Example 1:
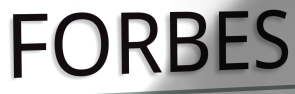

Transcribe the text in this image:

FORBES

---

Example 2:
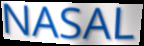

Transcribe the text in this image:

NASAL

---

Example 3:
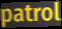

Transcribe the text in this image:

patrol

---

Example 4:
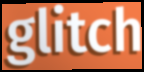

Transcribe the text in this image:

glitch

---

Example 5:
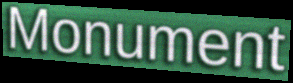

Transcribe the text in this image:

Monument